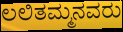
ಲಲಿತಮ್ಮನವರು